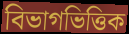
বিভাগভিত্তিক